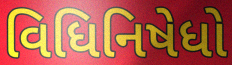
વિધિનિષેધો